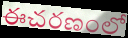
ఈచరణంలో